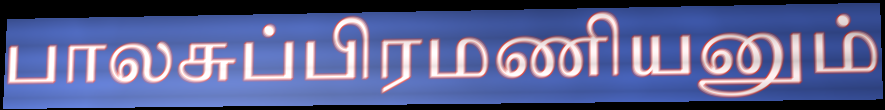
பாலசுப்பிரமணியனும்